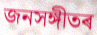
জনসঙ্গীতৰ